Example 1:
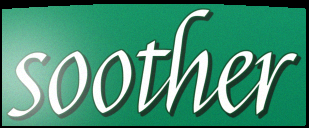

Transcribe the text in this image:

soother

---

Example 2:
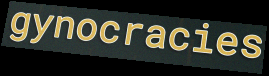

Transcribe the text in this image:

gynocracies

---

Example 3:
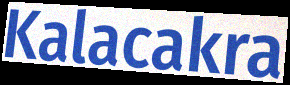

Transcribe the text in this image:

Kalacakra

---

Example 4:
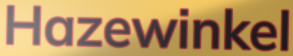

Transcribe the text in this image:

Hazewinkel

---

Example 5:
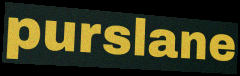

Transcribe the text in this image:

purslane